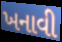
ખનાવી